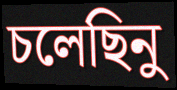
চলেছিনু